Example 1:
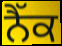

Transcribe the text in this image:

ਨੈੱਕ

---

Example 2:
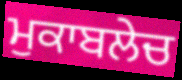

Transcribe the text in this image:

ਮੁਕਾਬਲੇਚ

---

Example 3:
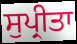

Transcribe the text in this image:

ਸੁਪ੍ਰੀਤਾ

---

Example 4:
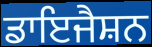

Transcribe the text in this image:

ਡਾਇਜੈਸ਼ਨ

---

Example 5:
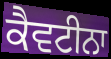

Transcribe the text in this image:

ਕੈਵਟੀਨਾ